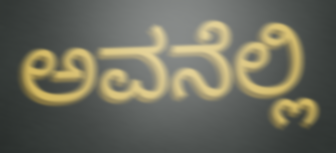
ಅವನೆಲ್ಲಿ